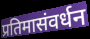
प्रतिमासंवर्धन